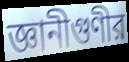
জ্ঞানীগুণীর